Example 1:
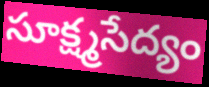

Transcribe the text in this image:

సూక్ష్మసేద్యం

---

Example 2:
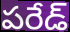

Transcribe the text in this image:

పరేడ్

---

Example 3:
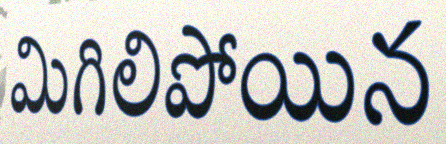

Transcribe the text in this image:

మిగిలిపోయిన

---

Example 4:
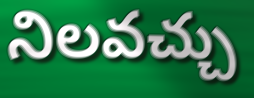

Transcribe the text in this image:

నిలవచ్చు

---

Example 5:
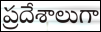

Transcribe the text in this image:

ప్రదేశాలుగా